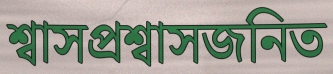
শ্বাসপ্রশ্বাসজনিত